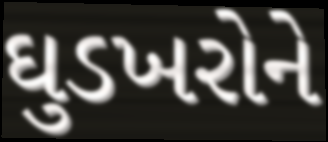
ઘુડખરોને